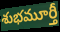
శుభమూర్తీ